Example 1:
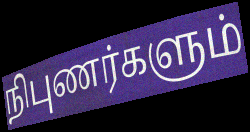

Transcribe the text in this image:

நிபுணர்களும்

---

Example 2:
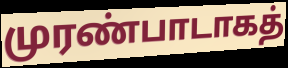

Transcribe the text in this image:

முரண்பாடாகத்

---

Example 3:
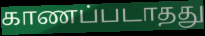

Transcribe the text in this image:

காணப்படாதது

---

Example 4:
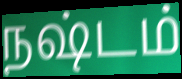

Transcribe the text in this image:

நஷ்டம்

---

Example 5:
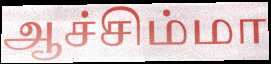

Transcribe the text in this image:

ஆச்சிம்மா